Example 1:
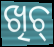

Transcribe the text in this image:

ଖିଚ୍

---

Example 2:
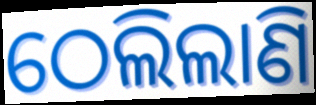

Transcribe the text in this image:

ଠେଲିଲାଣି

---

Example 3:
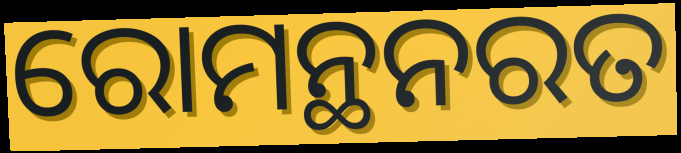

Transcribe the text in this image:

ରୋମନ୍ଥନରତ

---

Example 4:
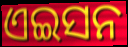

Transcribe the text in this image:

ଏଇସନ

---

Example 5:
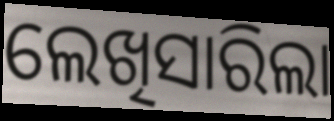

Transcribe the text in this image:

ଲେଖିସାରିଲା